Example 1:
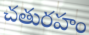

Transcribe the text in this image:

చతురహం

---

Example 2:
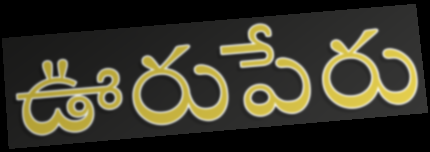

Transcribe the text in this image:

ఊరుపేరు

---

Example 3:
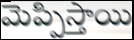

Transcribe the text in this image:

మెప్పిస్తాయి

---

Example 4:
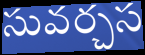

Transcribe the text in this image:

సువర్చస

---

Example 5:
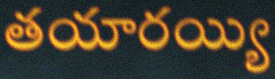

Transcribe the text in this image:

తయారయ్యి